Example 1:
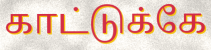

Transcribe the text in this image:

காட்டுக்கே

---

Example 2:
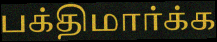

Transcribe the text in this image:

பக்திமார்க்க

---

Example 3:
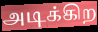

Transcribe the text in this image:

அடிக்கிற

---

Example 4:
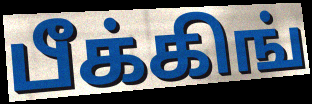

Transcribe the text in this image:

பீக்கிங்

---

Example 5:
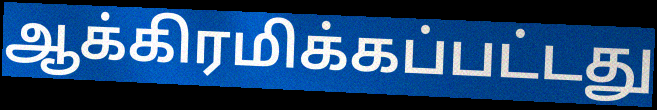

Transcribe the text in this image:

ஆக்கிரமிக்கப்பட்டது